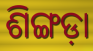
ଶିଙ୍ଗଡ଼ା